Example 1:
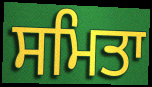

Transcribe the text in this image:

ਸਮਿਤਾ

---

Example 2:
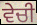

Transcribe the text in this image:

ਵੇਚੀ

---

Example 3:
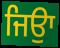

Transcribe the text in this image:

ਜਿਉਾ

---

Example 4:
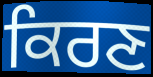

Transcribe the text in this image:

ਕਿਰਣ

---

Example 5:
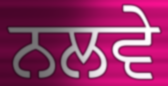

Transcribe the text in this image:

ਨਲਵੇ